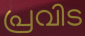
പ്രവിട